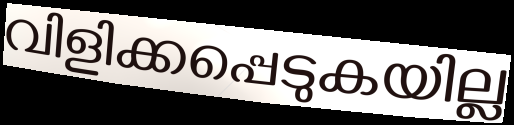
വിളിക്കപ്പെടുകയില്ല